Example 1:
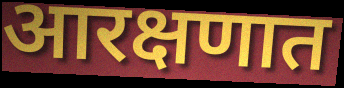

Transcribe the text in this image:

आरक्षणात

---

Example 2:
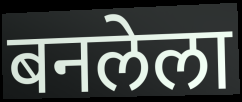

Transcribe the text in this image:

बनलेला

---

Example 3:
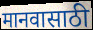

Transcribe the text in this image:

मानवासाठी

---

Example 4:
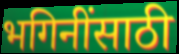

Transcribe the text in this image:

भगिनींसाठी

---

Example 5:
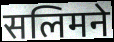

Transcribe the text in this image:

सलिमने